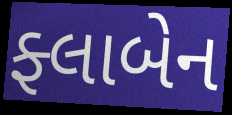
ફ્લાબેન